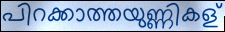
പിറക്കാത്തയുണ്ണികള്